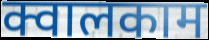
क्वालकाम